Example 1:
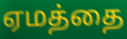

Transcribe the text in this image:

ஏமத்தை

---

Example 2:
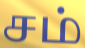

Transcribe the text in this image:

சம்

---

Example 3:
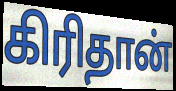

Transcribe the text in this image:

கிரிதான்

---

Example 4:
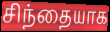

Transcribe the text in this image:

சிந்தையாக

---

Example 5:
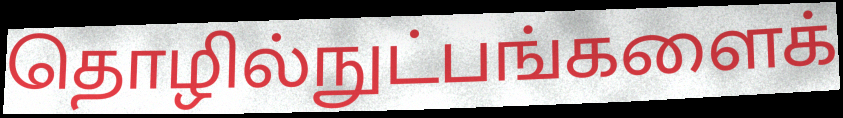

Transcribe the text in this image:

தொழில்நுட்பங்களைக்